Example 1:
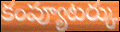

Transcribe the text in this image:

కంప్యూటర్కు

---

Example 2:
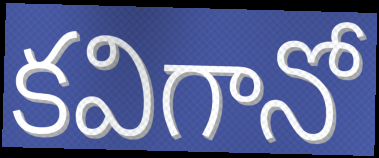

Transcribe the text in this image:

కవిగానో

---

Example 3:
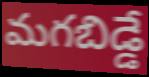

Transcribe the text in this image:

మగబిడ్డే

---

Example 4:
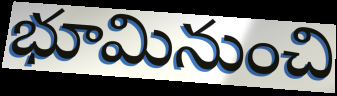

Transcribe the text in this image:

భూమినుంచి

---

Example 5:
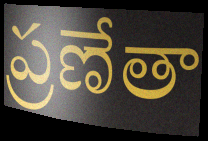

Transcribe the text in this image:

ప్రణేతా